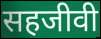
सहजीवी